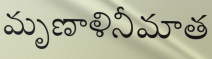
మృణాళినీమాత